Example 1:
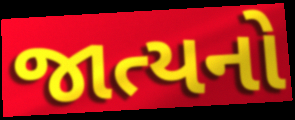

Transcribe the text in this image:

જાત્યનો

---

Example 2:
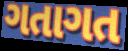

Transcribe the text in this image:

ગતાગત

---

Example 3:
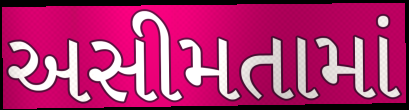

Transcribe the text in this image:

અસીમતામાં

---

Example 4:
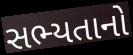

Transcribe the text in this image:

સભ્યતાનો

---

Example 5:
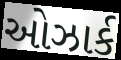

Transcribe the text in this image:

ઓઝાર્ક